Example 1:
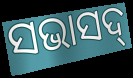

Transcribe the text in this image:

ସଭାସଦ୍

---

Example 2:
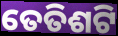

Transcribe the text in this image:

ତେତିଶଟି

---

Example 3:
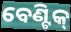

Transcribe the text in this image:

ବେଣ୍ଟିକ୍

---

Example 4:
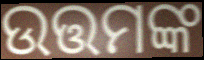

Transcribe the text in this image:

ଉତ୍ତମଙ୍କ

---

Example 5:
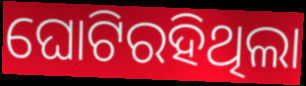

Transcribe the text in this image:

ଘୋଟିରହିଥିଲା